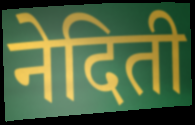
नेदिती